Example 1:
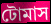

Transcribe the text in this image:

টোমাস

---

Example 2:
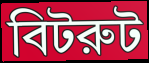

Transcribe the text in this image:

বিটরুট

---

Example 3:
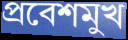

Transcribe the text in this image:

প্রবেশমুখ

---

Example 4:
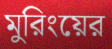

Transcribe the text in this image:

মুরিংয়ের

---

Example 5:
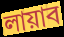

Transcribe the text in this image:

লায়াব